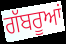
ਗੱਬਰੂਆਂ